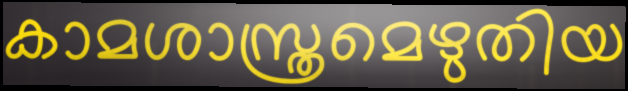
കാമശാസ്ത്രമെഴുതിയ